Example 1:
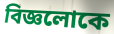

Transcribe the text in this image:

বিজ্ঞলোকে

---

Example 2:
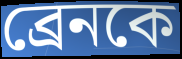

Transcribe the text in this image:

ব্রেনকে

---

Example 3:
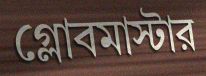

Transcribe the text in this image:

গ্লোবমাস্টার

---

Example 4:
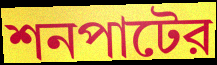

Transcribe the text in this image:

শনপাটের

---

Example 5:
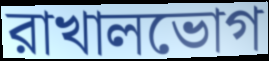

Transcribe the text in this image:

রাখালভোগ